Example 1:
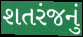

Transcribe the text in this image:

શતરંજનું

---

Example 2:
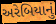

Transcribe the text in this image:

અરેબિયાનું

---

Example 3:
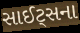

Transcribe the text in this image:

સાઈટ્સના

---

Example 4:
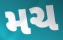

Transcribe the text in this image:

મચ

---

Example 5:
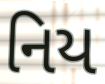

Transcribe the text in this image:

નિય